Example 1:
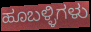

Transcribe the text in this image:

ಹೂಬಳ್ಳಿಗಳು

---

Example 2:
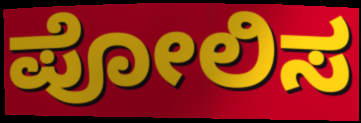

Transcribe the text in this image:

ಪೋಲಿಸ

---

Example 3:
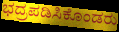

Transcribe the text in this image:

ಭದ್ರಪಡಿಸಿಕೊಂಡರು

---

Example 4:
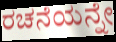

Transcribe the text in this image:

ರಚನೆಯನ್ನೇ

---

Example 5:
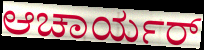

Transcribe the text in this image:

ಆಚಾರ್ಯರ್